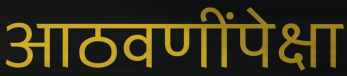
आठवणींपेक्षा